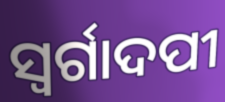
ସ୍ବର୍ଗାଦପୀ